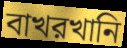
বাখরখানি